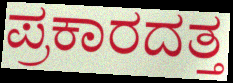
ಪ್ರಕಾರದತ್ತ